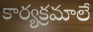
కార్యక్రమాలే